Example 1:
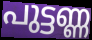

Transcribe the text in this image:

പുട്ടണ്ണ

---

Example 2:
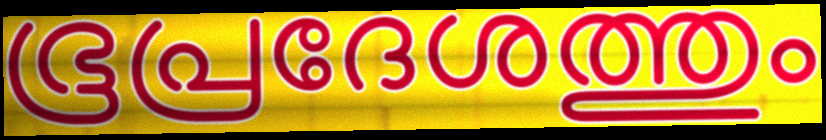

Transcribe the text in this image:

ഭൂപ്രദേശത്തും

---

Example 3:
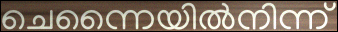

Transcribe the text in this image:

ചെന്നൈയിൽനിന്ന്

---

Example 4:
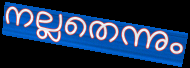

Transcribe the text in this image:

നല്ലതെന്നും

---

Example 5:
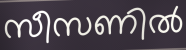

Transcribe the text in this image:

സീസണിൽ